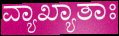
ವ್ಯಾಖ್ಯಾತಾಃ